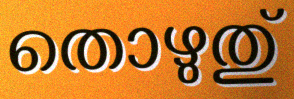
തൊഴുതു്